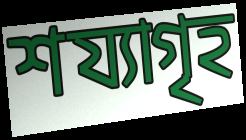
শয্যাগৃহ